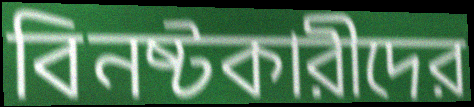
বিনষ্টকারীদের